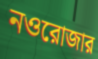
নওরোজার